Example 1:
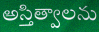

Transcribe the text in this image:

అస్తిత్వాలను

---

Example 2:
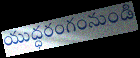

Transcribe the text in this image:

యుద్ధరంగంనుండి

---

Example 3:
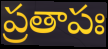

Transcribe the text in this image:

ప్రతాపః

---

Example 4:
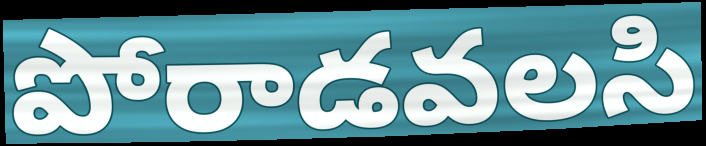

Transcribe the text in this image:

పోరాడవలసి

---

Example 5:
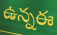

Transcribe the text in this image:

ఉన్నఈ